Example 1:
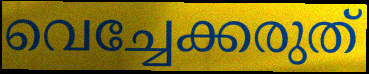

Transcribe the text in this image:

വെച്ചേക്കരുത്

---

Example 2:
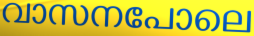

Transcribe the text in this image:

വാസനപോലെ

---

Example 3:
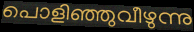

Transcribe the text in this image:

പൊളിഞ്ഞുവീഴുന്നു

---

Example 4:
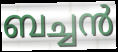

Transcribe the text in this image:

ബച്ചൻ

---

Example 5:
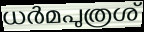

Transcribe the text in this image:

ധർമപുത്രശ്